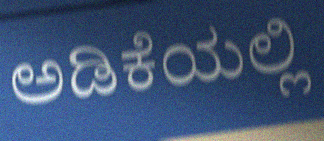
ಅಡಿಕೆಯಲ್ಲಿ